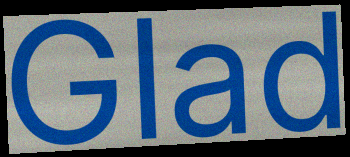
Glad